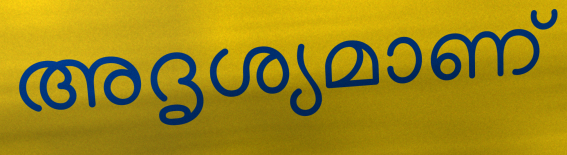
അദൃശ്യമാണ്